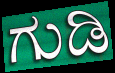
ಗುಡಿ